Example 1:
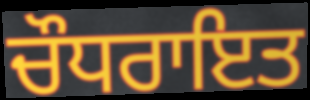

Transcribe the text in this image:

ਚੌਧਰਾਇਤ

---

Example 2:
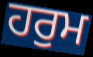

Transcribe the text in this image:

ਹਰੁਮ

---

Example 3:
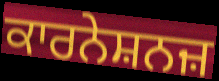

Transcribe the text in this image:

ਕਾਰਨੇਸ਼ਨਜ਼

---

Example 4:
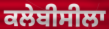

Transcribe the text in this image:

ਕਲੇਬੀਸੀਲਾ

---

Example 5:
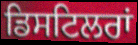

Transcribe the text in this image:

ਡਿਸਟਿਲਰਾਂ